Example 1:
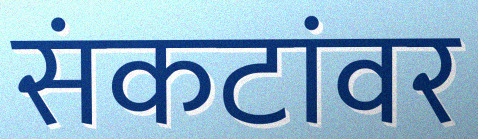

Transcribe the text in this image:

संकटांवर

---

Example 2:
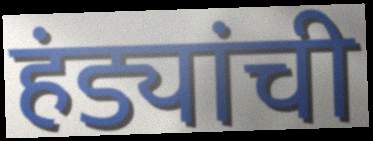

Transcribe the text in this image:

हंड्यांची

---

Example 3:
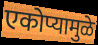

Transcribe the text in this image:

एकोप्यामुळे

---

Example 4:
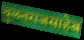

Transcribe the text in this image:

चुलतराजसाहेब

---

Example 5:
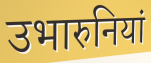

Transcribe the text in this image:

उभारुनियां